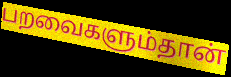
பறவைகளும்தான்